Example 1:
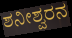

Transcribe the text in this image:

ಶನೀಶ್ವರನ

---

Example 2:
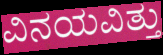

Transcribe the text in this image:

ವಿನಯವಿತ್ತು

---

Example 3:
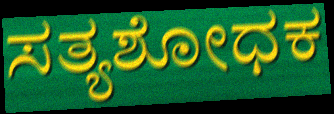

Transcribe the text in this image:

ಸತ್ಯಶೋಧಕ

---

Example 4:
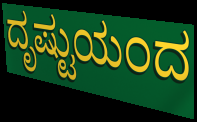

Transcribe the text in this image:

ದೃಷ್ಟುಯಂದ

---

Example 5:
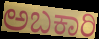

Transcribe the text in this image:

ಅಬಕಾರಿ